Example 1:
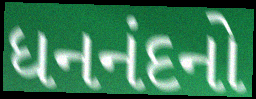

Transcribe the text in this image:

ધનનંદનો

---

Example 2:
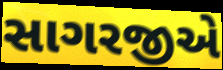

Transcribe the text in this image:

સાગરજીએ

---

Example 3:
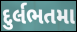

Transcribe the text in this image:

દુર્લભતમા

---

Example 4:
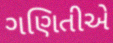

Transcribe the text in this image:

ગણિતીએ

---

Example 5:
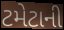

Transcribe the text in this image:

ટમેટાની